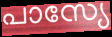
പാസ്യേ